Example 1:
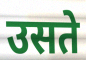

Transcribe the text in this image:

उसते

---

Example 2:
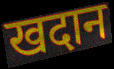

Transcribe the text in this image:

खदान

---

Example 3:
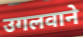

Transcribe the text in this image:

उगलवाने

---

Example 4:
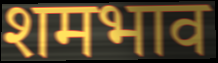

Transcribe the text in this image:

शमभाव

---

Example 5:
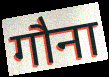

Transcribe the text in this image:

गौना